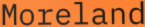
Moreland